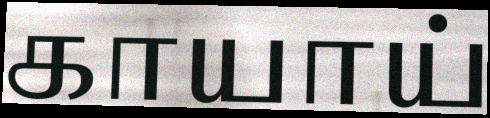
காயாய்